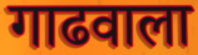
गाढवाला